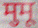
मुमू